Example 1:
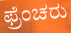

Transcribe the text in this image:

ಫ್ರೆಂಚರು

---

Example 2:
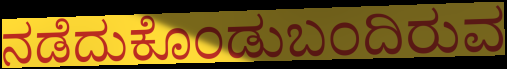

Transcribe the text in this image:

ನಡೆದುಕೊಂಡುಬಂದಿರುವ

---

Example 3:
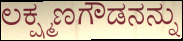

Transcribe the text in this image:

ಲಕ್ಷ್ಮಣಗೌಡನನ್ನು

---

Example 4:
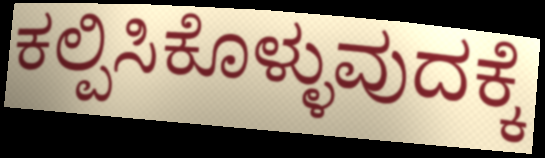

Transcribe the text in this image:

ಕಲ್ಪಿಸಿಕೊಳ್ಳುವುದಕ್ಕೆ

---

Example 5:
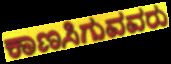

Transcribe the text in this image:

ಕಾಣಸಿಗುವವರು